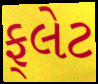
ફ્‌લેટ